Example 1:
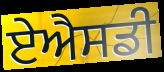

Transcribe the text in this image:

ਏਐਸਡੀ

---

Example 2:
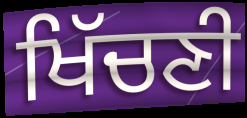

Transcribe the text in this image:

ਖਿੱਚਣੀ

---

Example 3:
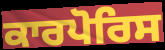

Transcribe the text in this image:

ਕਾਰਪੋਰਿਸ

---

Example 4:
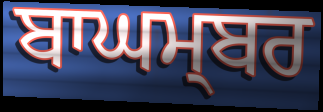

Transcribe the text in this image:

ਬਾਘਮ੍ਬਰ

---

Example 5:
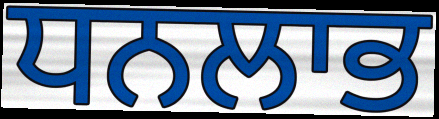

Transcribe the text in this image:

ਧਨਲਾਭ